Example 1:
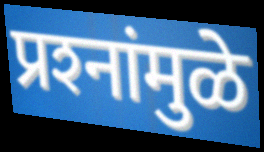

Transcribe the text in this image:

प्रश्‍नांमुळे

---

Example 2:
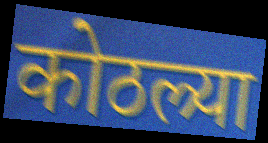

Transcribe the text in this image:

कोठल्या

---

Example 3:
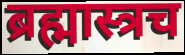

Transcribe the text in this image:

ब्रह्मास्त्रच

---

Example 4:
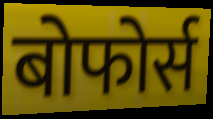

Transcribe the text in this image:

बोफोर्स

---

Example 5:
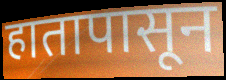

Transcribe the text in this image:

हातापासून